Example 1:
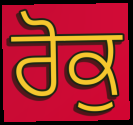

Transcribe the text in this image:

ਰੋਕੁ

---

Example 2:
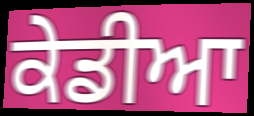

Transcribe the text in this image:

ਕੇਡੀਆ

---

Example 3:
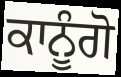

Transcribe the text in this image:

ਕਾਨੂੰਗੋ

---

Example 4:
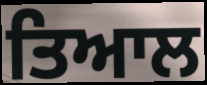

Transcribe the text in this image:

ਤਿਆਲ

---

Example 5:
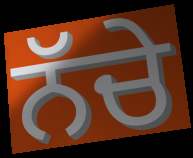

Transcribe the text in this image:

ਨੱਚੇ